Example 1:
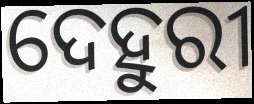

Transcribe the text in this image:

ଦେହୁରୀ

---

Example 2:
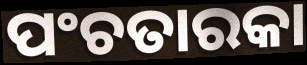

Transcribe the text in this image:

ପଂଚତାରକା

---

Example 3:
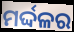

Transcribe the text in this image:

ମର୍ଦ୍ଦଳର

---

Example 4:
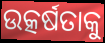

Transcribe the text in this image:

ଉତ୍କର୍ଷତାକୁ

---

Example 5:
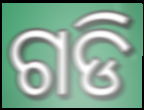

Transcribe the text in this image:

ଗଡି